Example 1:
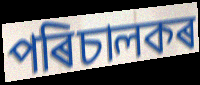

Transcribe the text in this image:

পৰিচালকৰ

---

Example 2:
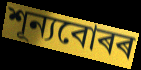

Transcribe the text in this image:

শূন্যবোৰৰ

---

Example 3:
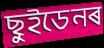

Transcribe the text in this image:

ছুইডেনৰ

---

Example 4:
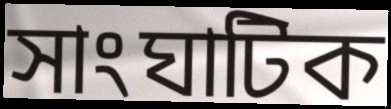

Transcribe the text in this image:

সাংঘাটিক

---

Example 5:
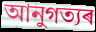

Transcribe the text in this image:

আনুগত্যৰ